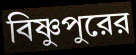
বিষ্ণুপুরের